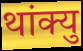
थांक्यु